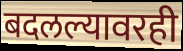
बदलल्यावरही